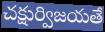
చక్షుర్విజయతే